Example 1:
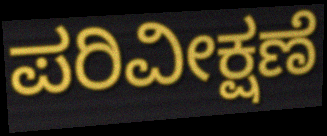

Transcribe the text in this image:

ಪರಿವೀಕ್ಷಣೆ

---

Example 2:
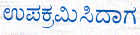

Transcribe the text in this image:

ಉಪಕ್ರಮಿಸಿದಾಗ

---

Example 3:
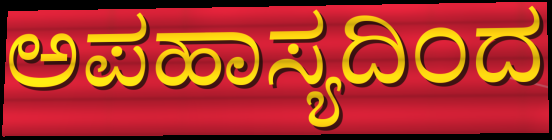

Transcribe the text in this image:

ಅಪಹಾಸ್ಯದಿಂದ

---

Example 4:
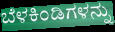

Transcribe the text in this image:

ಬೆಳಕಿಂಡಿಗಳನ್ನು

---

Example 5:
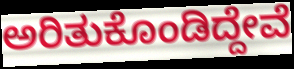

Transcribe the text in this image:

ಅರಿತುಕೊಂಡಿದ್ದೇವೆ